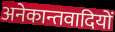
अनेकान्तवादियों